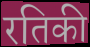
रतिकी